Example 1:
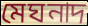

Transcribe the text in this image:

মেঘনাদ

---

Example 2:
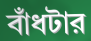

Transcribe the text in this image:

বাঁধটার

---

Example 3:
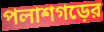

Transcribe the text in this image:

পলাশগড়ের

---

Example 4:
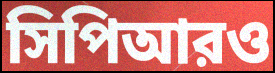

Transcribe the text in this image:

সিপিআরও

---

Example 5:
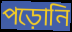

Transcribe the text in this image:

পড়োনি